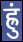
ह्रुं